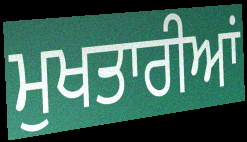
ਮੁਖਤਾਰੀਆਂ